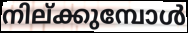
നില്ക്കുമ്പോൾ